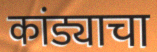
कांड्याचा